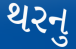
થરનુ